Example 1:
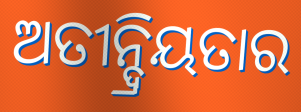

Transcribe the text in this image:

ଅତୀନ୍ଦ୍ରିୟତାର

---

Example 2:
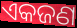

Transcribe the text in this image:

ଏକଜଣ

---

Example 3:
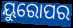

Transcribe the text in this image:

ୟୁରୋପର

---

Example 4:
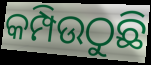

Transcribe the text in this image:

କମ୍ପିଉଠୁଛି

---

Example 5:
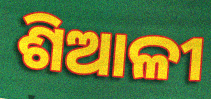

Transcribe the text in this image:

ଶିଆଳୀ